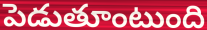
పెడుతూంటుంది